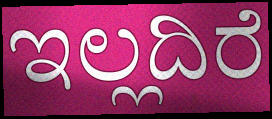
ಇಲ್ಲದಿರೆ